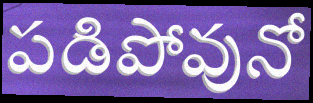
పడిపోవునో